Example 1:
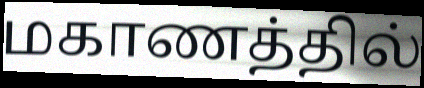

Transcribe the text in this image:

மகாணத்தில்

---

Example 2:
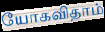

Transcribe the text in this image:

யோகவிதாம்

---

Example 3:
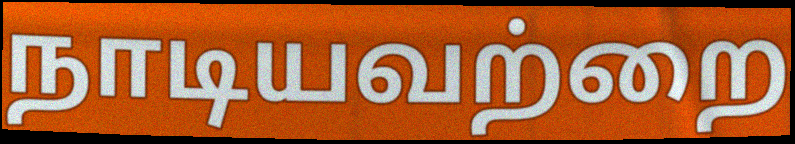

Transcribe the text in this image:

நாடியவற்றை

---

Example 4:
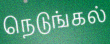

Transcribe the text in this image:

நெடுங்கல்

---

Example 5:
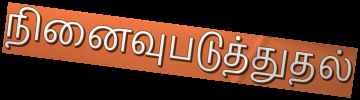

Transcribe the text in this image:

நினைவுபடுத்துதல்